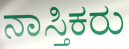
ನಾಸ್ತಿಕರು